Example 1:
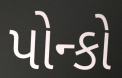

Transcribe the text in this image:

પોન્કો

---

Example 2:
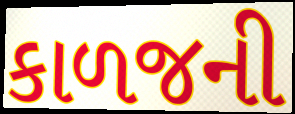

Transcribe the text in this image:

કાળજની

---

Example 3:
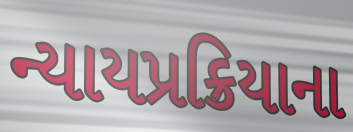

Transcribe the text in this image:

ન્યાયપ્રક્રિયાના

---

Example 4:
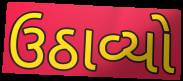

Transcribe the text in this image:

ઉઠાવ્યો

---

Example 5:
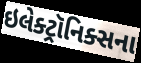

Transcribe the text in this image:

ઇલેક્ટ્રૉનિક્સના